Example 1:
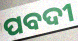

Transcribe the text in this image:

ପବଦୀ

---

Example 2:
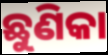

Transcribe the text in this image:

ଛୁଣିକା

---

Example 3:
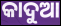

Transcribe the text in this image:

କାଦୁଆ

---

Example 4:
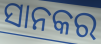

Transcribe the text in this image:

ସାନକର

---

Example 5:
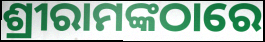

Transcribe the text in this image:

ଶ୍ରୀରାମଙ୍କଠାରେ